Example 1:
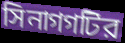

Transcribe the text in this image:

সিনাগগটির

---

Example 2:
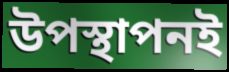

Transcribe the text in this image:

উপস্থাপনই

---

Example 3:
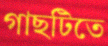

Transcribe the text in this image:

গাছটিতে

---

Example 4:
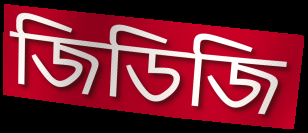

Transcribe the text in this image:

জিডিজি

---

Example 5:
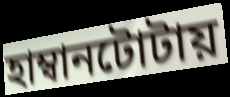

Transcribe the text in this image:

হাম্বানটোটায়